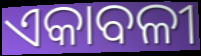
ଏକାବଳୀ